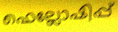
ഫെല്ലോഷിപ്പ്